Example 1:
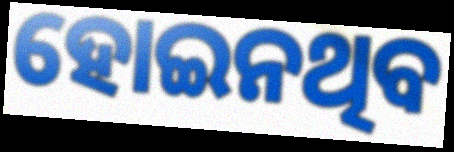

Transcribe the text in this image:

ହୋଇନଥିବ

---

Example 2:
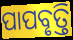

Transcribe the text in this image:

ପାପବୃତ୍ତି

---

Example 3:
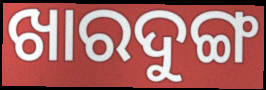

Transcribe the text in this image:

ଖାରଦୁଙ୍ଗ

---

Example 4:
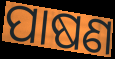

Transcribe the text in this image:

ପାଷଣ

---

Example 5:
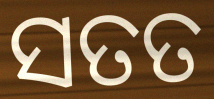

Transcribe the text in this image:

ସତତ